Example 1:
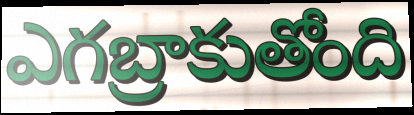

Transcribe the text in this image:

ఎగబ్రాకుతోంది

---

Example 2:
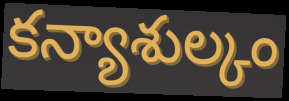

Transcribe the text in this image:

కన్యాశుల్కం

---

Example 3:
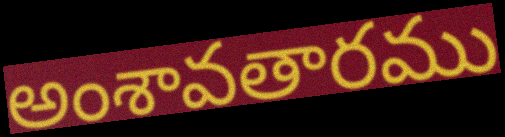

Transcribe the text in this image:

అంశావతారము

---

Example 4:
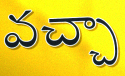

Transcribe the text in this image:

వచ్చా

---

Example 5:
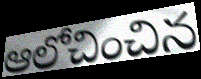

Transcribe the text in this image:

ఆలోచించిన